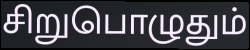
சிறுபொழுதும்